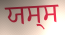
ਯਸ੍ਸ